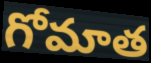
గోమాత